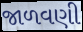
જાળવણી